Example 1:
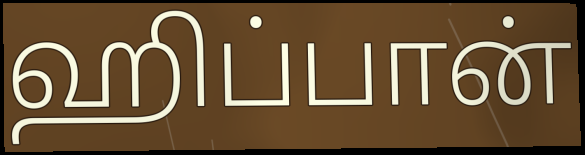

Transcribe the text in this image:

ஹிப்பான்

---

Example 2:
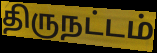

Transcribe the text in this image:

திருநட்டம்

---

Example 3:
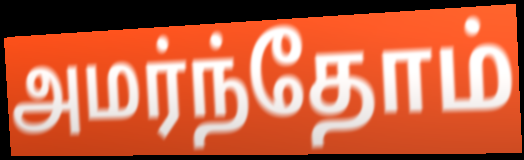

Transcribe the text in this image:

அமர்ந்தோம்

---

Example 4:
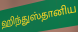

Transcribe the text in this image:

ஹிந்துஸ்தானிய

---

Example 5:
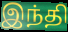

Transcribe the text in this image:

இந்தி